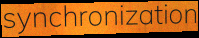
synchronization